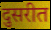
दुसरीत